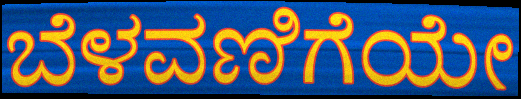
ಬೆಳವಣಿಗೆಯೇ